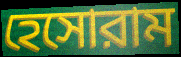
হেসোরাম